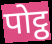
पोट्ठ